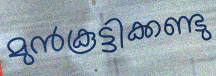
മുൻകൂട്ടിക്കണ്ടു